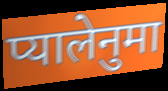
प्यालेनुमा